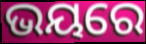
ଭୟରେ